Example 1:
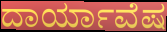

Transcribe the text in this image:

ದಾರ್ಯಾವೆಷ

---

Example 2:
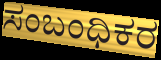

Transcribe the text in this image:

ಸಂಬಂಧಿಕರ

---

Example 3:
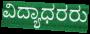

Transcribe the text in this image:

ವಿದ್ಯಾಧರರು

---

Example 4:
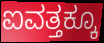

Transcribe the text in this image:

ಐವತ್ತಕ್ಕೂ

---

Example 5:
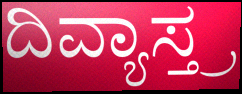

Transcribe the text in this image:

ದಿವ್ಯಾಸ್ತ್ರ